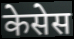
केसेस